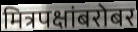
मित्रपक्षांबरोबर